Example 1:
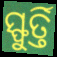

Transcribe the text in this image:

ସ୍ଫୁର୍ତ୍ତି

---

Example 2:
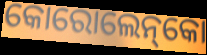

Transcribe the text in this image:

କୋରୋଲେନ୍‌କୋ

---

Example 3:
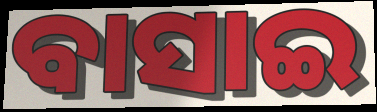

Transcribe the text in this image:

ବାସାଇ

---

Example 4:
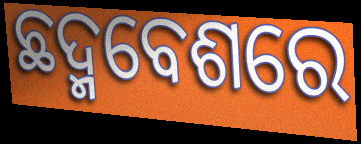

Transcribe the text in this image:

ଛଦ୍ମବେଶରେ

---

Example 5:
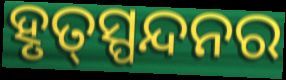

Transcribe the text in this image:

ହୃତ୍‌ସ୍ପନ୍ଦନର